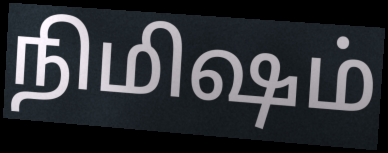
நிமிஷம்